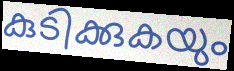
കുടിക്കുകയും